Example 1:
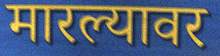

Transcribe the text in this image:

मारल्यावर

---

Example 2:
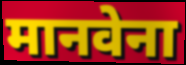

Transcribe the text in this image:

मानवेना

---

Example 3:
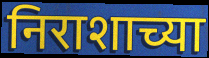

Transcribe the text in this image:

निराशाच्या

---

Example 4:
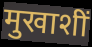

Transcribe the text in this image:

मुखाशीं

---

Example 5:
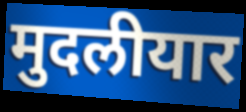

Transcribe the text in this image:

मुदलीयार